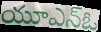
యూఎన్ఓ